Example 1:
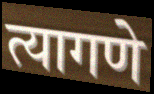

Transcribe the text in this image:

त्यागणे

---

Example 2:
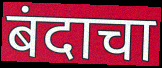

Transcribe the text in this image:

बंदाचा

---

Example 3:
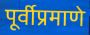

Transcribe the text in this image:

पूर्वीप्रमाणे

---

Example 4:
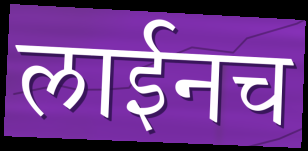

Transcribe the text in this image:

लाईनच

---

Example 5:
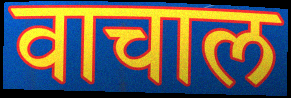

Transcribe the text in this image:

वाचाल